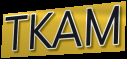
TKAM